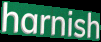
harnish